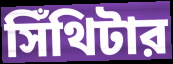
সিঁথিটার